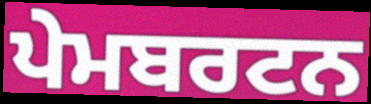
ਪੇਮਬਰਟਨ